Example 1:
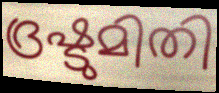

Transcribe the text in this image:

ദ്രഷ്ടുമിതി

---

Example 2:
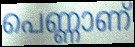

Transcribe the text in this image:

പെണ്ണാണ്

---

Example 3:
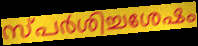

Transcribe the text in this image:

സ്പർശിച്ചശേഷം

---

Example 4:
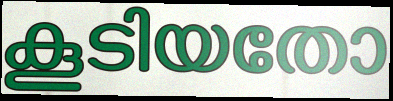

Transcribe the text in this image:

കൂടിയതോ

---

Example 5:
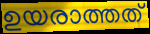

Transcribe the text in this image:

ഉയരാത്തത്